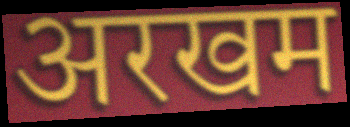
अरखम